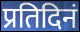
प्रतिदिनं